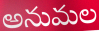
అనుమల